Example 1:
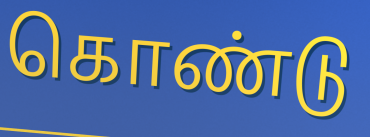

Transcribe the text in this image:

கொண்டு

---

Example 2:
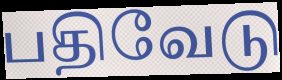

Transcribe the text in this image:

பதிவேடு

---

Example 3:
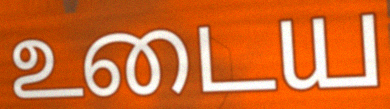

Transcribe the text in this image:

உடைய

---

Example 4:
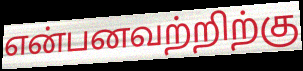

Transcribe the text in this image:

என்பனவற்றிற்கு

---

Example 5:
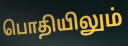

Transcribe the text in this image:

பொதியிலும்